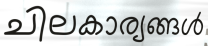
ചിലകാര്യങ്ങൾ